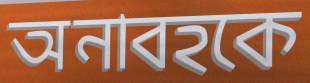
অনাবহকে